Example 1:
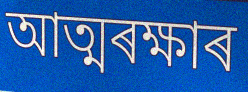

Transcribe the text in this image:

আত্মৰক্ষাৰ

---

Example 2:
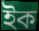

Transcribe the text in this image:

ইক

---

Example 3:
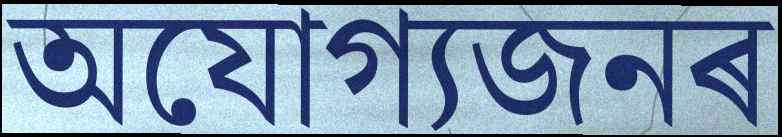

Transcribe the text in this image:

অযোগ্যজনৰ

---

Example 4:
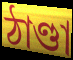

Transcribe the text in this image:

ঠাণ্ডা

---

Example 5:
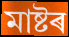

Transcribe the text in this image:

মাষ্টৰ